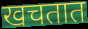
खचतात